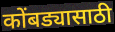
कोंबड्यासाठी